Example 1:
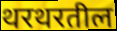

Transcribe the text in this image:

थरथरतील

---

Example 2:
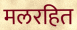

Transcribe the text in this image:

मलरहित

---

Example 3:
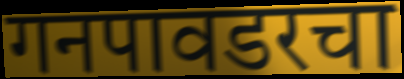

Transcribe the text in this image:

गनपावडरचा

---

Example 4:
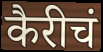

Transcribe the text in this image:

कैरीचं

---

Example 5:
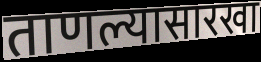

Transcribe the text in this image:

ताणल्यासारखा